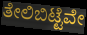
ತೇಲಿಬಿಟ್ಟೆವೇ